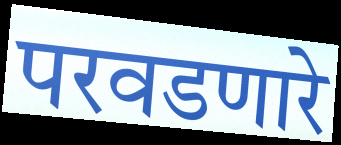
परवडणारे